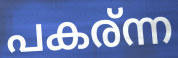
പകര്ന്ന